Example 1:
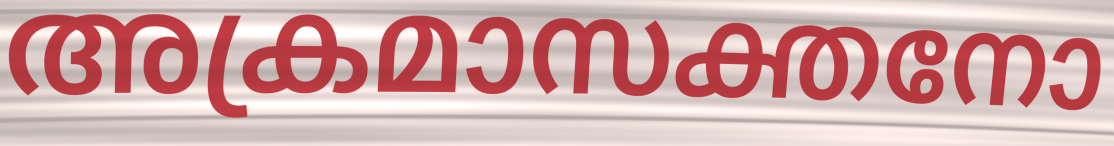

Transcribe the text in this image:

അക്രമാസക്തനോ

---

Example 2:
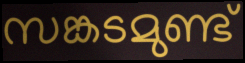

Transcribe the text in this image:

സങ്കടമുണ്ട്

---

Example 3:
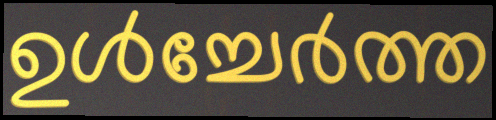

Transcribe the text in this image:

ഉൾച്ചേർത്ത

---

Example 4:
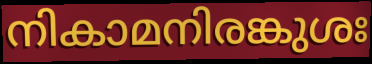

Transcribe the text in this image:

നികാമനിരങ്കുശഃ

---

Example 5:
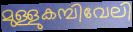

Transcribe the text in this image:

മുള്ളുകമ്പിവേലി